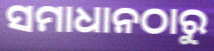
ସମାଧାନଠାରୁ